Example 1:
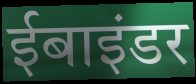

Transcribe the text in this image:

ईबाइंडर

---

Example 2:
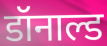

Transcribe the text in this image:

डॉनाल्ड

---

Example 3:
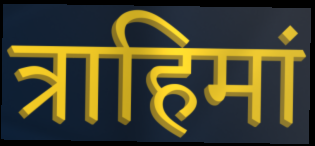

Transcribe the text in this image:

त्राहिमां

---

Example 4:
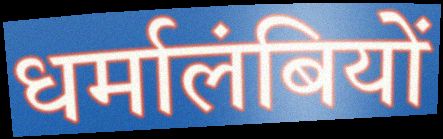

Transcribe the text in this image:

धर्मालंबियों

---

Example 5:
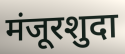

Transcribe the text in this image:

मंजूरशुदा